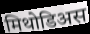
मिथोडिअस